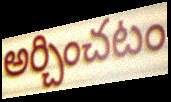
అర్చించటం